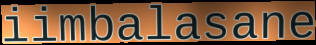
iimbalasane